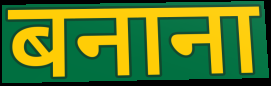
बनाना